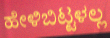
ಹೇಳಿಬಿಟ್ಟಳಲ್ಲ